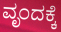
ವೃಂದಕ್ಕೆ